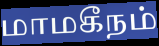
மாமகீநம்